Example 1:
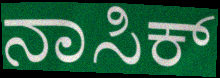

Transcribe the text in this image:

ನಾಸಿಕ್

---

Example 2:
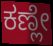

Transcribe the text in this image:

ಕಣ್ಲೇ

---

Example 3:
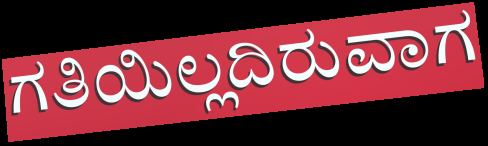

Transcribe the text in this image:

ಗತಿಯಿಲ್ಲದಿರುವಾಗ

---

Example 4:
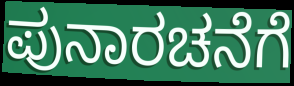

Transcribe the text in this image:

ಪುನಾರಚನೆಗೆ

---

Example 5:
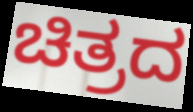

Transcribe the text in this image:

ಚಿತ್ರದ